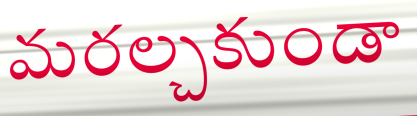
మరల్చకుండా